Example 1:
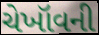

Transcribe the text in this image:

ચેખૉવની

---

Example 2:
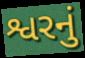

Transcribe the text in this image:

શ્વરનું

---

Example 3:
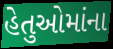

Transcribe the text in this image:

હેતુઓમાંના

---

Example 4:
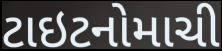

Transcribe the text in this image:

ટાઇટનોમાચી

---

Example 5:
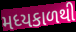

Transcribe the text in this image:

મધ્યકાળથી